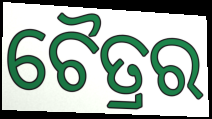
ଚୈତ୍ରର